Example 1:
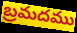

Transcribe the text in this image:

బ్రమదము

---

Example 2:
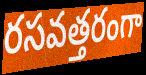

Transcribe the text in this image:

రసవత్తరంగా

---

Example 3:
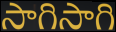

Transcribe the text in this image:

సాగిసాగి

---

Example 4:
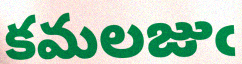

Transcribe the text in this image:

కమలజుఁ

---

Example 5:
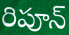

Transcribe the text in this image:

రిపూన్